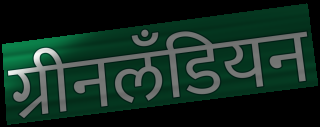
ग्रीनलॅंडियन